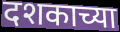
दशकाच्या